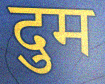
दुम